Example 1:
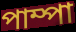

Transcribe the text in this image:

পাম্পা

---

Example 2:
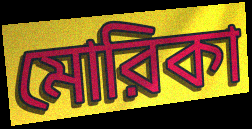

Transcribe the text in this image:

মোরিকা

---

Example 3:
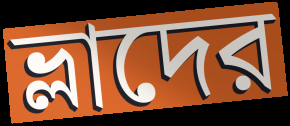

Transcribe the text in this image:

ভ্লাদের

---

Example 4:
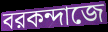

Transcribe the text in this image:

বরকন্দাজে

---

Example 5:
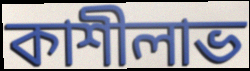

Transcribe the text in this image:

কাশীলাভ